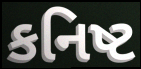
કનિષ્ટ